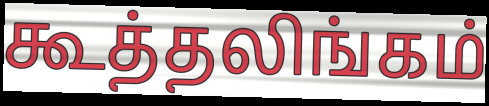
கூத்தலிங்கம்